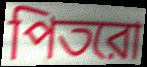
পিতরো